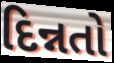
દિન્નતો